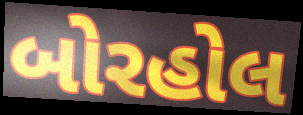
બોરહોલ